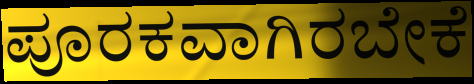
ಪೂರಕವಾಗಿರಬೇಕೆ